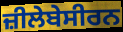
ਜ਼ੀਲੇਬੇਸੀਰਨ